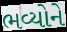
ભવ્યોને